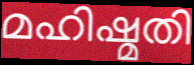
മഹിഷ്മതി